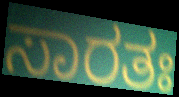
ಸಾರತಃ